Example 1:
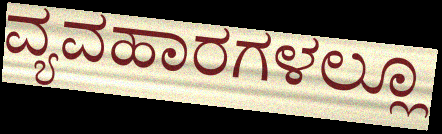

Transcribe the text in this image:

ವ್ಯವಹಾರಗಳಲ್ಲೂ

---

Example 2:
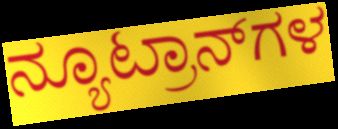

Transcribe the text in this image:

ನ್ಯೂಟ್ರಾನ್‌ಗಳ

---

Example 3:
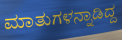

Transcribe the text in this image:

ಮಾತುಗಳನ್ನಾಡಿದ್ದ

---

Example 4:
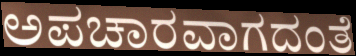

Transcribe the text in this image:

ಅಪಚಾರವಾಗದಂತೆ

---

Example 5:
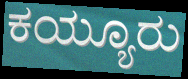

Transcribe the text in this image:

ಕಯ್ಯೂರು